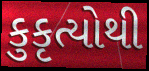
કુકૃત્યોથી